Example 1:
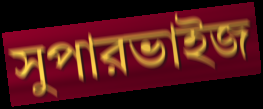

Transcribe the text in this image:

সুপারভাইজ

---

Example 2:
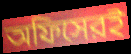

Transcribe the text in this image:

অফিসেরই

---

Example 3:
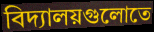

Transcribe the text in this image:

বিদ্যালয়গুলোতে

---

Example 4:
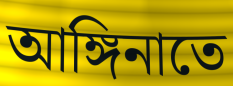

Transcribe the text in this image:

আঙ্গিনাতে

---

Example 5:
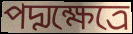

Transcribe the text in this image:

পদ্মক্ষেত্রে